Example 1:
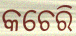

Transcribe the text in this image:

କଚେରି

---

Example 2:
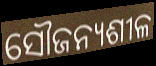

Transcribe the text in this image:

ସୌଜନ୍ୟଶୀଳ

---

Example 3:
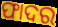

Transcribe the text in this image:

ଫାଦର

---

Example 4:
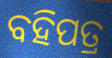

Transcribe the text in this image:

ବହିପତ୍ର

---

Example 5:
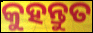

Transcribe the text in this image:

କୁହନ୍ତୁତ